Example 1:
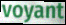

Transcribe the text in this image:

voyant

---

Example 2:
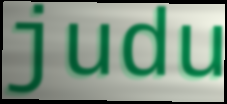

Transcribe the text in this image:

judu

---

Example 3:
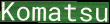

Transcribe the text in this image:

Komatsu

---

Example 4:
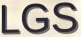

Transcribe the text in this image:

LGS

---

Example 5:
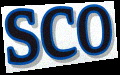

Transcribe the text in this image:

sco